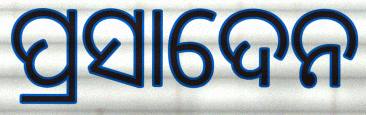
ପ୍ରସାଦେନ